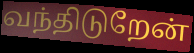
வந்திடுறேன்